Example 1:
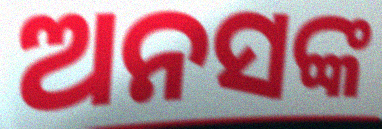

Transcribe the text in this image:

ଅନସଙ୍କ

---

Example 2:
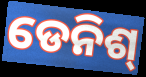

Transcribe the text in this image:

ଡେନିଶ୍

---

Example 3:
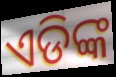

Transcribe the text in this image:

ଏଡିଙ୍କ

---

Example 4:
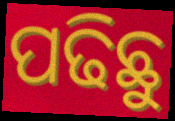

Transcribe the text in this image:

ପଢିଛୁ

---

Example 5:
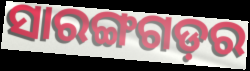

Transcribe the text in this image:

ସାରଙ୍ଗଗଡ଼ର